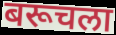
बरूचला